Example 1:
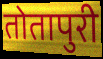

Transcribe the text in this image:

तोतापुरी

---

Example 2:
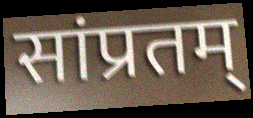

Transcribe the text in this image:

सांप्रतम्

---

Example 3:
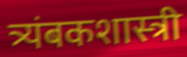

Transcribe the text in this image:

त्र्यंबकशास्त्री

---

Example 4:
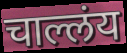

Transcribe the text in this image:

चाल्लंय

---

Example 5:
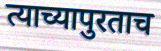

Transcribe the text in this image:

त्याच्यापुरताच